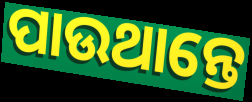
ପାଉଥାନ୍ତେ